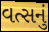
વત્સનું